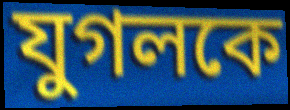
যুগলকে